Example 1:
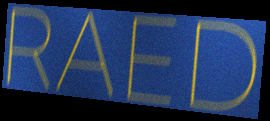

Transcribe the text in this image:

RAED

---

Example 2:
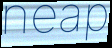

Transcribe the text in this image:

neap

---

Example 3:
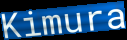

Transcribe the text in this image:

Kimura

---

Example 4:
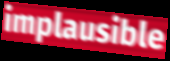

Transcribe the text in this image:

implausible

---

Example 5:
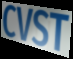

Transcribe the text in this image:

CVST